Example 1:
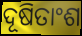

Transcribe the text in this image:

ଦୂଷିତାଂଶ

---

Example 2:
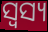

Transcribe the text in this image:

ସ୍ଵସ୍ଯ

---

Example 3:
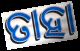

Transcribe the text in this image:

ତାହା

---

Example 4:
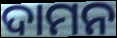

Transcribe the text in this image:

ଦାମନ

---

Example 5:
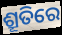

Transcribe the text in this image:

ଶ୍ରୂତିରେ